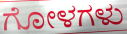
ಗೋಳಗಳು